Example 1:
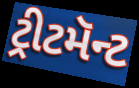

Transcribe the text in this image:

ટ્રીટમૅન્ટ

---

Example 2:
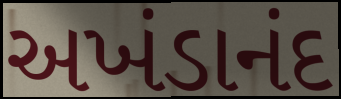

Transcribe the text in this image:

અખંડાનંદ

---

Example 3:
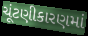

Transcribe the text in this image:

ચૂંટણીકારણમાં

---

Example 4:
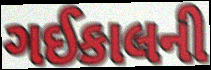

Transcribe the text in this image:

ગઈકાલની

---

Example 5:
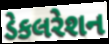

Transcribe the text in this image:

ડેકલરેશન